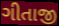
ગીતાજી